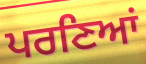
ਪਰਣਿਆਂ